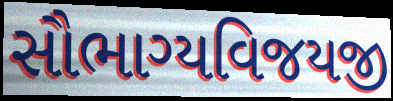
સૌભાગ્યવિજયજી